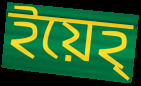
ইয়েহ্